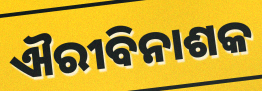
ଐରୀବିନାଶକ